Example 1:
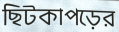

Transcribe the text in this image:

ছিটকাপড়ের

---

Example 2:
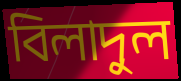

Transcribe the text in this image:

বিলাদুল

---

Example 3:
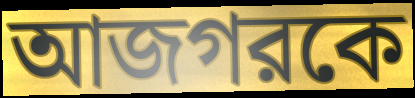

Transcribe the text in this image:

আজগরকে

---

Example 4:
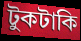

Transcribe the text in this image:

টুকটাকি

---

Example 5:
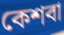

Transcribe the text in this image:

কেশবা